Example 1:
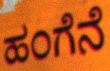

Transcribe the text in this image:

ಹಂಗೆನೆ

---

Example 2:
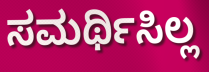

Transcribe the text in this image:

ಸಮರ್ಥಿಸಿಲ್ಲ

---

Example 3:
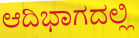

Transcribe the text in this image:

ಆದಿಭಾಗದಲ್ಲಿ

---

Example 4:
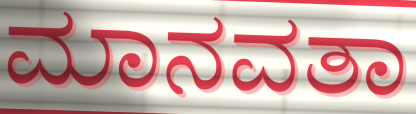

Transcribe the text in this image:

ಮಾನವತಾ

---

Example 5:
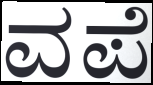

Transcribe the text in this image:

ವಪೆ